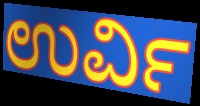
ಉರ್ವಿ